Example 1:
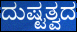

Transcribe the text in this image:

ದುಷ್ಟತ್ವದ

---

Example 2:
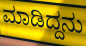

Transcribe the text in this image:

ಮಾಡಿದ್ದನು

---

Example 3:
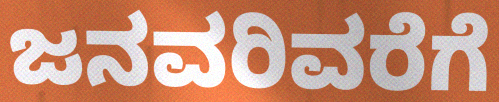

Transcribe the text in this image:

ಜನವರಿವರೆಗೆ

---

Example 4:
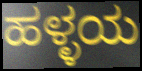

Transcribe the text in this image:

ಹಳ್ಳಯ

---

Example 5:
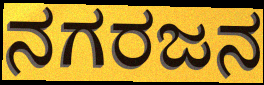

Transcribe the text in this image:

ನಗರಜನ